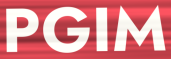
PGIM